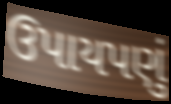
ઉપાયપણું